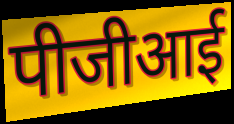
पीजीआई